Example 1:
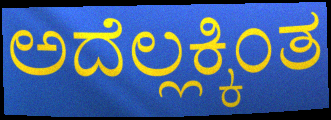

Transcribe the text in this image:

ಅದೆಲ್ಲಕ್ಕಿಂತ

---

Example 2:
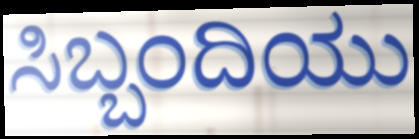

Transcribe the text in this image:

ಸಿಬ್ಬಂದಿಯು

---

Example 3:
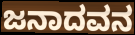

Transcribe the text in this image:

ಜನಾದವನ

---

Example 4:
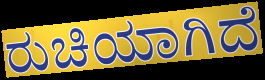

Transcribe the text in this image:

ರುಚಿಯಾಗಿದೆ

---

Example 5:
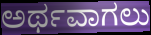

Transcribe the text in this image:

ಅರ್ಥವಾಗಲು